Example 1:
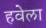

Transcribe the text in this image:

हवेला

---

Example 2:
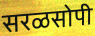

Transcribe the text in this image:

सरळसोपी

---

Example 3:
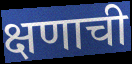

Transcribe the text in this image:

क्षणाची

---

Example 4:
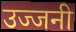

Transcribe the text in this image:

उज्जनी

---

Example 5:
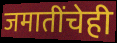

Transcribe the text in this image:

जमातींचेही